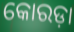
କୋରଡ଼ା